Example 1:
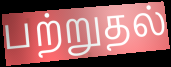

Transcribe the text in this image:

பற்றுதல்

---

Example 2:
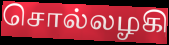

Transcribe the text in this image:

சொல்லழகி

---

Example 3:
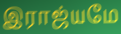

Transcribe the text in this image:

இராஜ்யமே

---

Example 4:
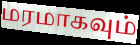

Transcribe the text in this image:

மரமாகவும்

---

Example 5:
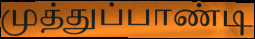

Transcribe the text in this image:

முத்துப்பாண்டி